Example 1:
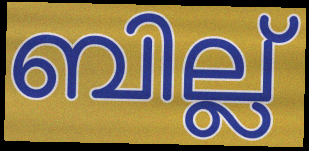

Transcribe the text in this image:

ബില്ല്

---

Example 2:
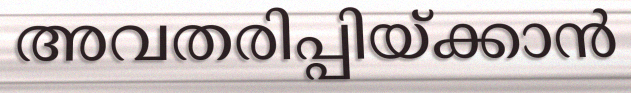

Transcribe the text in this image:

അവതരിപ്പിയ്ക്കാൻ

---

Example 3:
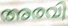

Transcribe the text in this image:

അരവി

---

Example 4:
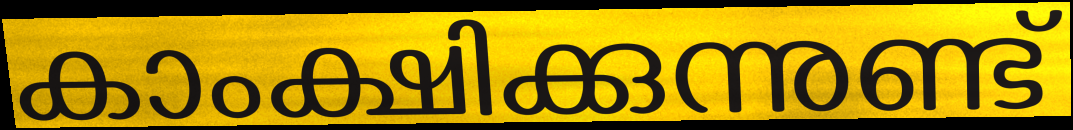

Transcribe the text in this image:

കാംക്ഷിക്കുന്നുണ്ട്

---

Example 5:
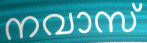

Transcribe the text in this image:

നവാസ്